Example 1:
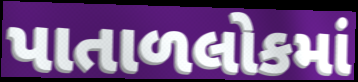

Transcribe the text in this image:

પાતાળલોકમાં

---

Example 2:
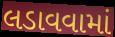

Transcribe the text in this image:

લડાવવામાં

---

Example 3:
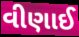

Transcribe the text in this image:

વીણાઈ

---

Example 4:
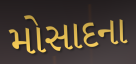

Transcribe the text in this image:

મોસાદના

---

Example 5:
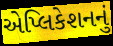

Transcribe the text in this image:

એપ્લિકેશનનું